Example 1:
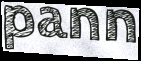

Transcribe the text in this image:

pann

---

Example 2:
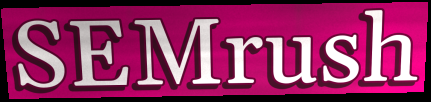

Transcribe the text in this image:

SEMrush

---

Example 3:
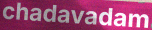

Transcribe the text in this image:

chadavadam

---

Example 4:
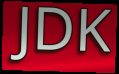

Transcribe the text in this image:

JDK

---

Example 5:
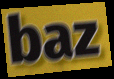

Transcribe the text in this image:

baz